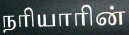
நரியாரின்